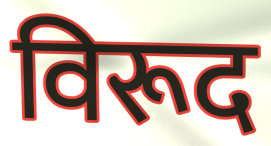
विरूद